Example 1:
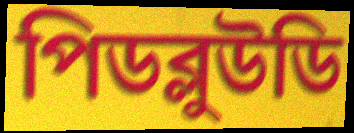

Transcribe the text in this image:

পিডব্লুউডি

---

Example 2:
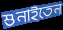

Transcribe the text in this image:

শুনাইতেন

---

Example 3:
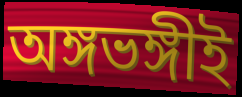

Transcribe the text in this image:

অঙ্গভঙ্গীই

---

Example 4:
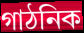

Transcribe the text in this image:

গাঠনিক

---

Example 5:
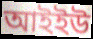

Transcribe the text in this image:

আইইউ